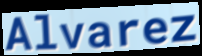
Alvarez